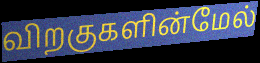
விறகுகளின்மேல்